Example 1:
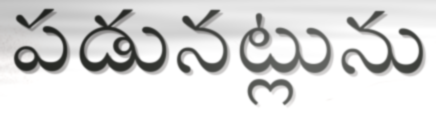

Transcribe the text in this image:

పడునట్లును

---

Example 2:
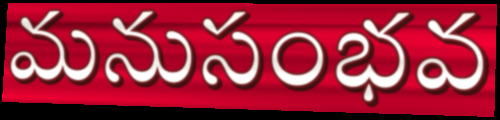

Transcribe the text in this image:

మనుసంభవ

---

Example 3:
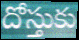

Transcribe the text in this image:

దోస్తుకు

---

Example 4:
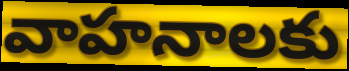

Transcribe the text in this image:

వాహనాలకు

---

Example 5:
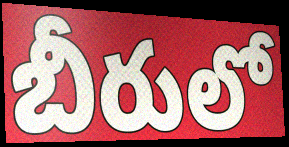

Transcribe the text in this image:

బీరులో